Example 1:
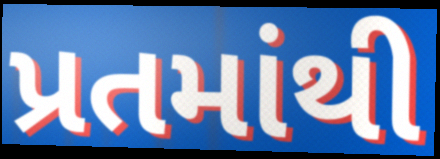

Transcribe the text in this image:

પ્રતમાંથી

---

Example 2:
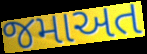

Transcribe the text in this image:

જમાઅત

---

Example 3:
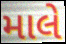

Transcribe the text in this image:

માલે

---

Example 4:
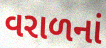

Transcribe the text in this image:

વરાળનાં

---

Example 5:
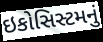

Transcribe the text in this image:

ઇકોસિસ્ટમનું